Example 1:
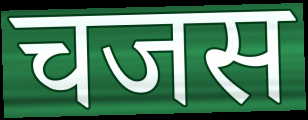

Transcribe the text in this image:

चजस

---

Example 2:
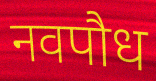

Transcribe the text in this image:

नवपौध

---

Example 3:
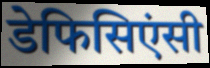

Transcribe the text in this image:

डेफिसिएंसी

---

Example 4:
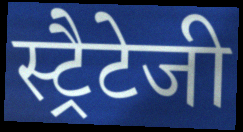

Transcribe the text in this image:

स्ट्रैटेजी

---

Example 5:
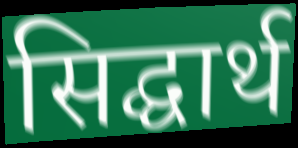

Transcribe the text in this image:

सिद्घार्थ